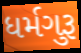
ધર્મગુરૂ